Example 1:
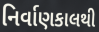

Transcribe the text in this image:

નિર્વાણકાલથી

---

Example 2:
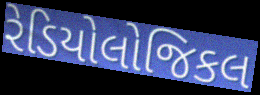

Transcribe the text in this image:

રેડિયોલોજિકલ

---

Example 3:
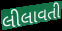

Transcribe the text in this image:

લીલાવતી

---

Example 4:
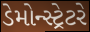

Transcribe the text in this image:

ડેમોન્સ્ટ્રેટરે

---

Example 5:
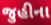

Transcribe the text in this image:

જુહીના